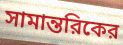
সামান্তরিকের